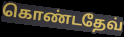
கொண்டதேவ்